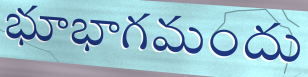
భూభాగమందు